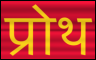
प्रोथ